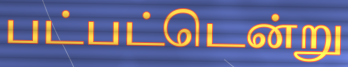
பட்பட்டென்று